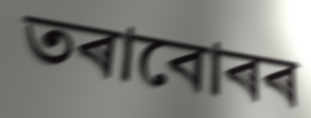
তৰাবোৰৰ